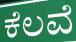
ಕೆಲವೆ